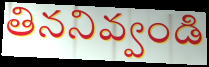
తిననివ్వండి